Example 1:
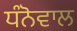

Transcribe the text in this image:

ਧੰਨੋਵਾਲ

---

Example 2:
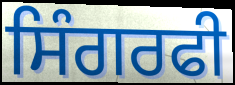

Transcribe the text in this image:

ਸਿੰਗਰਫੀ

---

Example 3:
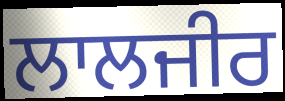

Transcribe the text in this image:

ਲਾਲਜੀਰ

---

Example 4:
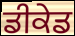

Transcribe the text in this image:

ਡੀਕੇਡ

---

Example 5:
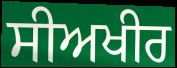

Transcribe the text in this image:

ਸੀਅਖੀਰ